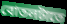
বোতলটাতে